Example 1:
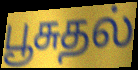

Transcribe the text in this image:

பூசுதல்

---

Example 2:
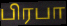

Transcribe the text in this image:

பிரபா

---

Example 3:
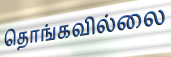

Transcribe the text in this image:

தொங்கவில்லை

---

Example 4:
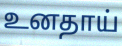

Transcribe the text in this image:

உனதாய்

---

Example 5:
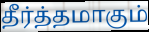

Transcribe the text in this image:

தீர்த்தமாகும்